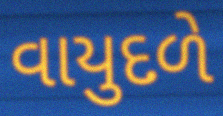
વાયુદળે